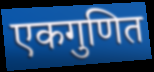
एकगुणित